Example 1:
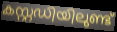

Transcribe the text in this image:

കസ്റ്റഡിയിലുണ്ട്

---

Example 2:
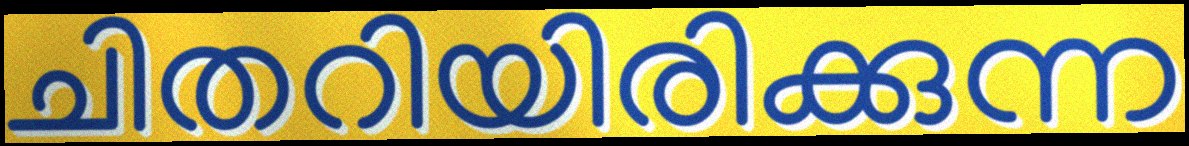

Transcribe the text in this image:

ചിതറിയിരിക്കുന്ന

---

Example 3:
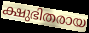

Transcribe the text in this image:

ക്ഷുഭിതരായ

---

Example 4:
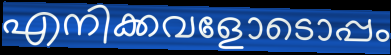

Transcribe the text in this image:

എനിക്കവളോടൊപ്പം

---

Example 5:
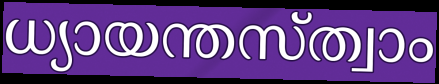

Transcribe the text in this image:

ധ്യായന്തസ്ത്വാം